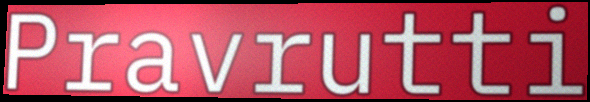
Pravrutti